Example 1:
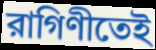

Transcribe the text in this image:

রাগিণীতেই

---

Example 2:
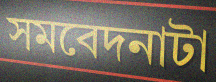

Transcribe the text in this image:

সমবেদনাটা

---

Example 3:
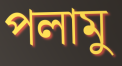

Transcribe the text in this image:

পলামু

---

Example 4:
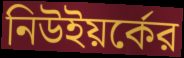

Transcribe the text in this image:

নিউইয়র্কের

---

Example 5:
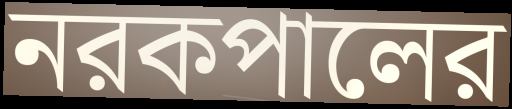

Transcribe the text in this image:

নরকপালের